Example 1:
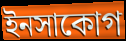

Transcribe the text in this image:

ইনসাকোগ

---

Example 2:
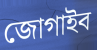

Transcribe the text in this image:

জোগাইব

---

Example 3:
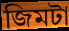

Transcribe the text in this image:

জিমটা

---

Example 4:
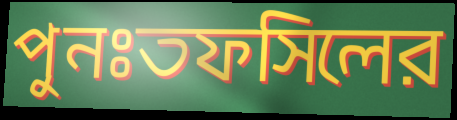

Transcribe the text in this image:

পুনঃতফসিলের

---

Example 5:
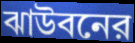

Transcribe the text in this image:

ঝাউবনের